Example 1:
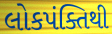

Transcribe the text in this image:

લોકપંક્તિથી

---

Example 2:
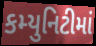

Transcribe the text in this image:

કમ્યુનિટીમાં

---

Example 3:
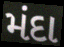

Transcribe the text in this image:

મંદા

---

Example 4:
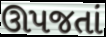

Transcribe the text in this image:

ઊપજતાં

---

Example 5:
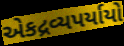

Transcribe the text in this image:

એકદ્રવ્યપર્યાયો